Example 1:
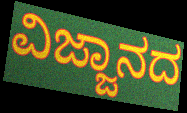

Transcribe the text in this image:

ವಿಜ್ಜಾನದ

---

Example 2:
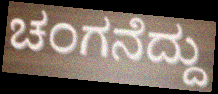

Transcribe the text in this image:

ಚಂಗನೆದ್ದು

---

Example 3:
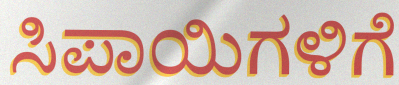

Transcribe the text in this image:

ಸಿಪಾಯಿಗಳಿಗೆ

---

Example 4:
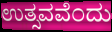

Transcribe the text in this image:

ಉತ್ಸವವೆಂದು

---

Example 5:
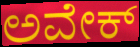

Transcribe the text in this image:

ಅವೇಕ್